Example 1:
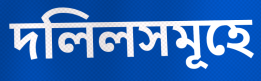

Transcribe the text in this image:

দলিলসমূহে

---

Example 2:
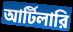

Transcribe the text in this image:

আর্টিলারি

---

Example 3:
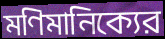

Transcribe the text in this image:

মণিমানিক্যের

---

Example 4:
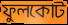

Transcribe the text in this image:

ফুলকোট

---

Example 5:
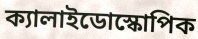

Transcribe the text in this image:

ক্যালাইডোস্কোপিক